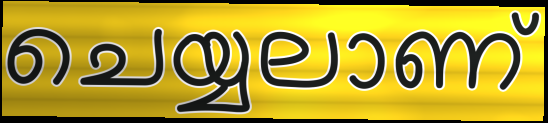
ചെയ്യലാണ്